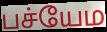
பச்யேம